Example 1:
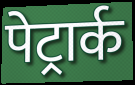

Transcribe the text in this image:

पेट्रार्क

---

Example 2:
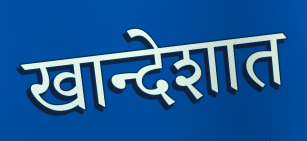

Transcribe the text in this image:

खान्देशात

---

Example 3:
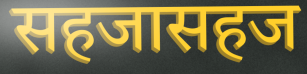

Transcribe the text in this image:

सहजासहज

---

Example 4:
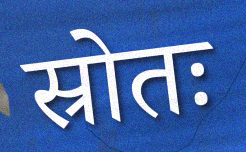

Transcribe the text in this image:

स्रोतः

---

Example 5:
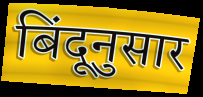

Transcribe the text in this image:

बिंदूनुसार